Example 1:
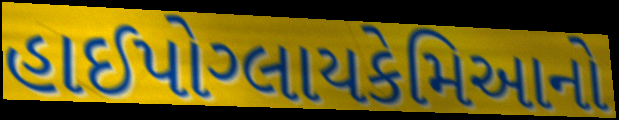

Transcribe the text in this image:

હાઈપોગ્લાયકેમિઆનો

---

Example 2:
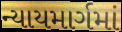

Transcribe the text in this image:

ન્યાયમાર્ગમાં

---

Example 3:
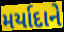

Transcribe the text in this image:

મર્યાદાને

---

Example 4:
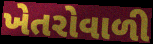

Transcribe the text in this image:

ખેતરોવાળી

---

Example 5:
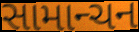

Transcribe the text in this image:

સામાન્ચન